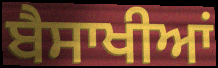
ਬੈਸਾਖੀਆਂ